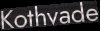
Kothvade